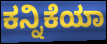
ಕನ್ನಿಕೆಯಾ